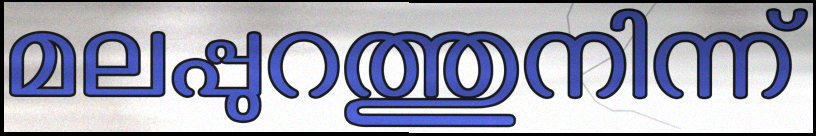
മലപ്പുറത്തുനിന്ന്